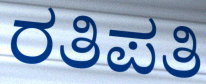
ರತಿಪತಿ